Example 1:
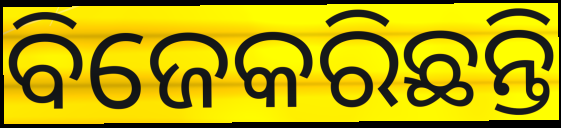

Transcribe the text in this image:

ବିଜେକରିଛନ୍ତି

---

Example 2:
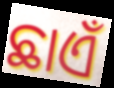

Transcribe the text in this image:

ଛାଏଁ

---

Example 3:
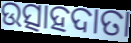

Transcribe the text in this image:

ଉତ୍ସାହଦାତା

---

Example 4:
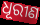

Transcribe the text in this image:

ଧୂରୀଣ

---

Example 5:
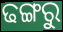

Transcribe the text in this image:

ଢଙ୍ଗରୁ